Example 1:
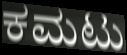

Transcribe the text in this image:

ಕಮಟು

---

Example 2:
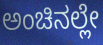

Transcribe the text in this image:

ಅಂಚಿನಲ್ಲೇ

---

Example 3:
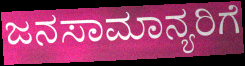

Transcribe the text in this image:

ಜನಸಾಮಾನ್ಯರಿಗೆ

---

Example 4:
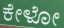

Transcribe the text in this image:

ಕೇಳೋ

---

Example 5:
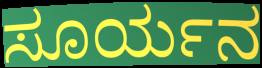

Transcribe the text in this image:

ಸೂರ್ಯನ